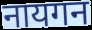
नायगन